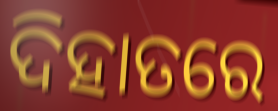
ଦିହାତରେ